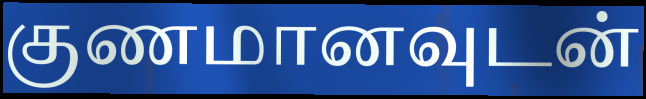
குணமானவுடன்